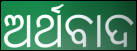
ଅର୍ଥବାଦ